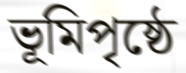
ভূমিপৃষ্ঠে